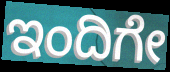
ಇಂದಿಗೇ